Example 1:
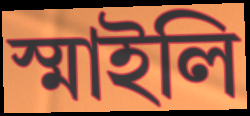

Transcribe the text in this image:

স্মাইলি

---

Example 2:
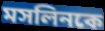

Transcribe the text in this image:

মসলিনকে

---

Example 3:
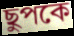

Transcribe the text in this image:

ছুপকে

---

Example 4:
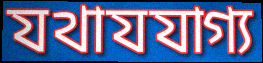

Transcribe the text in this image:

যথাযযাগ্য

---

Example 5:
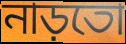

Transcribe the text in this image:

নাড়তো